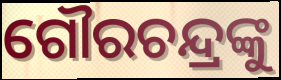
ଗୌରଚନ୍ଦ୍ରଙ୍କୁ